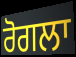
ਰੋਗਲਾ